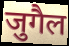
जुगैल